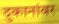
दुकानांवर